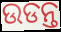
ଉଡନ୍ତ